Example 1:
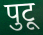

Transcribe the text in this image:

पुटू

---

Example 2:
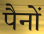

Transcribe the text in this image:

पैनों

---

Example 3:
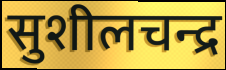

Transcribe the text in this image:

सुशीलचन्द्र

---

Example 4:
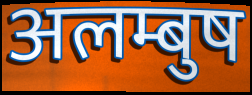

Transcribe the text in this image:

अलम्बुष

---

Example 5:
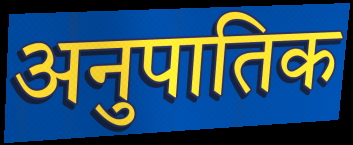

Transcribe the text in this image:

अनुपातिक